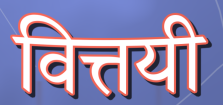
वित्तयी